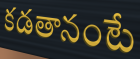
కడతానంటే